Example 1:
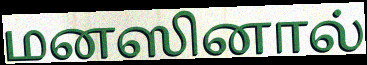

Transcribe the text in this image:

மனஸினால்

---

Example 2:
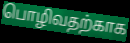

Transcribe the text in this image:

பொழிவதற்காக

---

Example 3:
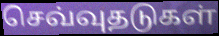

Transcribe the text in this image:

செவ்வுதடுகள்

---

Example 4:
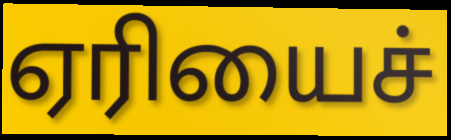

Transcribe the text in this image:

ஏரியைச்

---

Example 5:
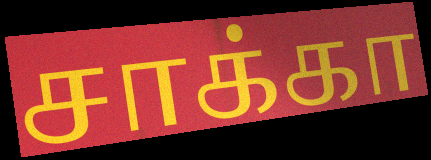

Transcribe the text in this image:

சாக்கா